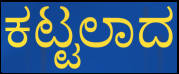
ಕಟ್ಟಲಾದ